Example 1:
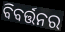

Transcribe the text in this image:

ବିବର୍ତ୍ତନର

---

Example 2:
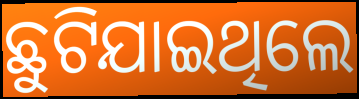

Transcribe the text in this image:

ଛୁଟିଯାଇଥିଲେ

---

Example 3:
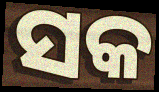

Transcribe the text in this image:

ସକ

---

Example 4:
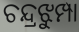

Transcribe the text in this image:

ଚନ୍ଦ୍ରଝୁମ୍ପା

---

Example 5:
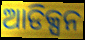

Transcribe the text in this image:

ଆଡିକ୍ସନ